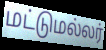
மட்டுமல்லர்